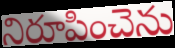
నిరూపించెను